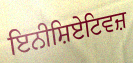
ਇਨੀਸ਼ਿਏਟਿਵਜ਼